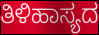
ತಿಳಿಹಾಸ್ಯದ